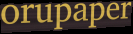
orupaper